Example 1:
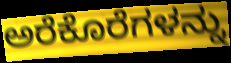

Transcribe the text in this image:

ಅರೆಕೊರೆಗಳನ್ನು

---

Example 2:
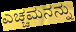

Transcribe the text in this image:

ಎಚ್ಚಮನನ್ನು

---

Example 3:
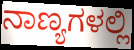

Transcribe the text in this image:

ನಾಣ್ಯಗಳಲ್ಲಿ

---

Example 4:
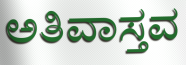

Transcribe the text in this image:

ಅತಿವಾಸ್ತವ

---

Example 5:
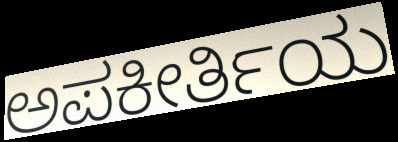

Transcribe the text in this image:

ಅಪಕೀರ್ತಿಯ